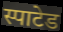
स्पाटेड